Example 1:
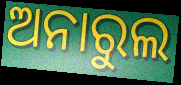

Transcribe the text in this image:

ଅନାରୁଲ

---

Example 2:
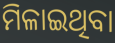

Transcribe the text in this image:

ମିଳାଇଥିବା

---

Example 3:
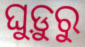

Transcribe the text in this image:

ଘୁଡ଼ୁରୁ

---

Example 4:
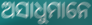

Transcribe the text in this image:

ଅସାଧୁମାନେ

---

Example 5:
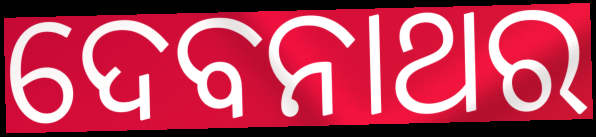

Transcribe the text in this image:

ଦେବନାଥର